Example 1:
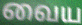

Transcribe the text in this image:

வைய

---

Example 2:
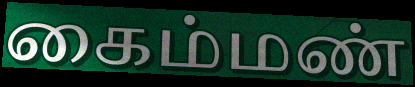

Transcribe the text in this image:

கைம்மண்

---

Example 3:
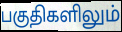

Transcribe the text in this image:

பகுதிகளிலும்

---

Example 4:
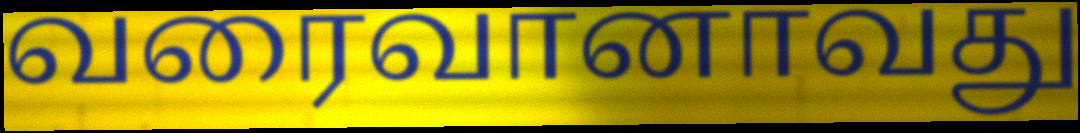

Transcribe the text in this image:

வரைவானாவது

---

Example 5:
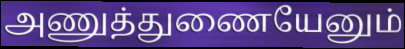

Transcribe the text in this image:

அணுத்துணையேனும்